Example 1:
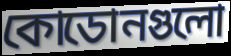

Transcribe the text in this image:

কোডোনগুলো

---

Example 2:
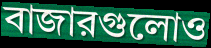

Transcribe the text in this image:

বাজারগুলোও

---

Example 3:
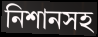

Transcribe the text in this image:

নিশানসহ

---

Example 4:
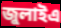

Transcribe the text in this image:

জুলাইএ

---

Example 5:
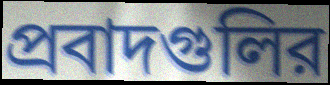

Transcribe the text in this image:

প্রবাদগুলির